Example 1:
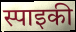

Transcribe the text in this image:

स्पाइकी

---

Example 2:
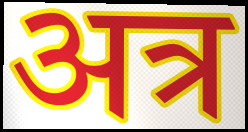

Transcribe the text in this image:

अत्र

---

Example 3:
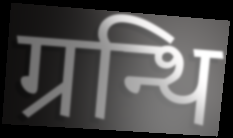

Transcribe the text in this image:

ग्रन्थि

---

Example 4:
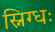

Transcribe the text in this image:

स्निग्धः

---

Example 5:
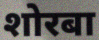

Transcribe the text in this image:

शोरबा